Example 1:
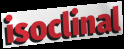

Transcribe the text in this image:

isoclinal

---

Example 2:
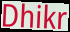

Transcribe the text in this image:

Dhikr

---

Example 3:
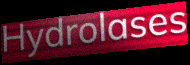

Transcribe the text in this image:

Hydrolases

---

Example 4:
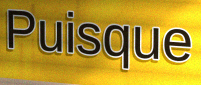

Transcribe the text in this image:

Puisque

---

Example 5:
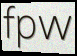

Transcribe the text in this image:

fpw